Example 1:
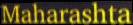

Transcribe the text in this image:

Maharashta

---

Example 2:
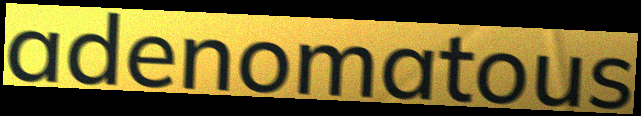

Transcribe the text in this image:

adenomatous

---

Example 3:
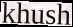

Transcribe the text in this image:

khush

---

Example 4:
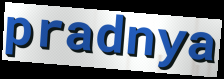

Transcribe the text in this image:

pradnya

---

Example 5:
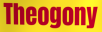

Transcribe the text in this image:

Theogony